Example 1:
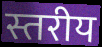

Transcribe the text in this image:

स्तरीय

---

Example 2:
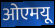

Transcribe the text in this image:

ओएमयू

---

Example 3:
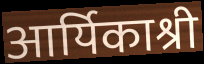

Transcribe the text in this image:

आर्यिकाश्री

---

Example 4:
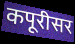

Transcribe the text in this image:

कपूरीसर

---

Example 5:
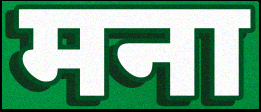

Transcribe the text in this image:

मना